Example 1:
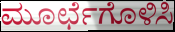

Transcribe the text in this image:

ಮೂರ್ಛೆಗೊಳಿಸಿ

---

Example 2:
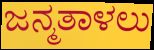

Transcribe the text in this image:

ಜನ್ಮತಾಳಲು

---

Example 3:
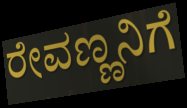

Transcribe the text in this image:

ರೇವಣ್ಣನಿಗೆ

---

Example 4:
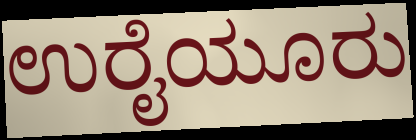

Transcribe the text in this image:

ಉರೈಯೂರು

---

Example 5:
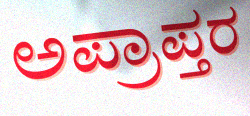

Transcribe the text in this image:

ಅಪ್ರಾಪ್ತರ